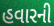
હવારની